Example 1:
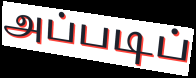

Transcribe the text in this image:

அப்படிப்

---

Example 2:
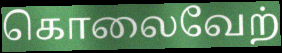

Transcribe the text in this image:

கொலைவேற்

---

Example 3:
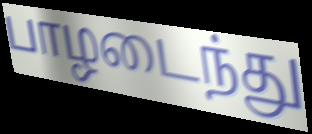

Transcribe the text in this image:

பாழடைந்து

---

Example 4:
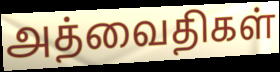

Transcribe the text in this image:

அத்வைதிகள்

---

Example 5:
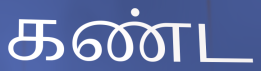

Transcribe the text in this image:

கண்ட